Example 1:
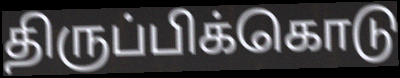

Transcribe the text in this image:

திருப்பிக்கொடு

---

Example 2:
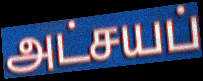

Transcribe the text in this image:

அட்சயப்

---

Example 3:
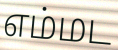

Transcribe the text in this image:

எம்மட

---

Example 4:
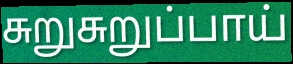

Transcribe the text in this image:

சுறுசுறுப்பாய்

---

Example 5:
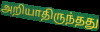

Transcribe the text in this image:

அறியாதிருந்தது